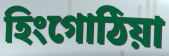
হিংগোঠিয়া